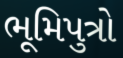
ભૂમિપુત્રો